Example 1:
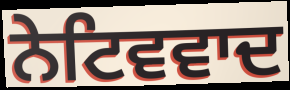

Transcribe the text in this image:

ਨੇਟਿਵਵਾਦ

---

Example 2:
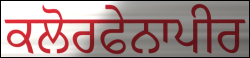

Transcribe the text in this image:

ਕਲੋਰਫੇਨਾਪੀਰ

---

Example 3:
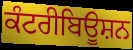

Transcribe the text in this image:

ਕੰਟਰੀਬਿਊਸ਼ਨ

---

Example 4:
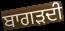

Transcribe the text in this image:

ਬਾਗੜਦੀ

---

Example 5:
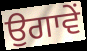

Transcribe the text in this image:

ਉਗਾਵੇਂ